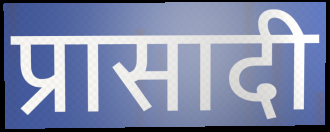
प्रासादी